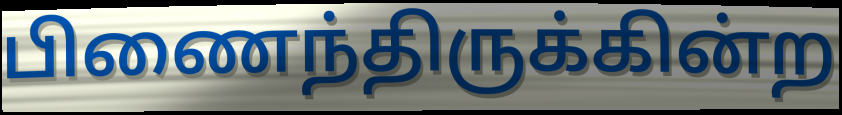
பிணைந்திருக்கின்ற